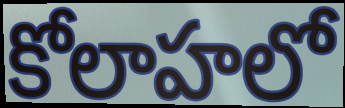
కోలాహలో